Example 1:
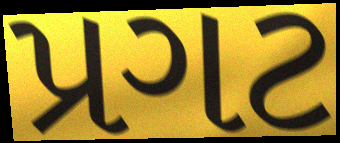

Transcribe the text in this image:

પ્રગટ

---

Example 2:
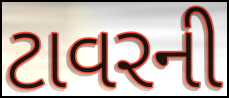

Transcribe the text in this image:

ટાવરની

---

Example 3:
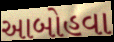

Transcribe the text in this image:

આબોહવા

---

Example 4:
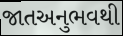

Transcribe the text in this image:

જાતઅનુભવથી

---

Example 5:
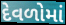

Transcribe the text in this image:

દેવળોમાં